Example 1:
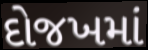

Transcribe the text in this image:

દોજખમાં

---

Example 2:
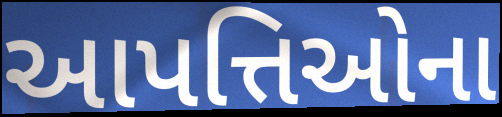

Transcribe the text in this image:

આપત્તિઓના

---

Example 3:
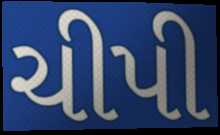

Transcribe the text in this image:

ચીપી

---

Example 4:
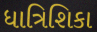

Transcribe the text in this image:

ધાત્રિશિકા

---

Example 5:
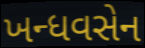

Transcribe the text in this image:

ખન્ધવસેન